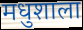
मधुशाला